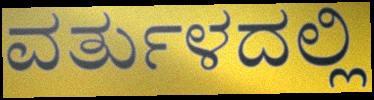
ವರ್ತುಳದಲ್ಲಿ